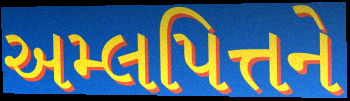
અમ્લપિત્તને